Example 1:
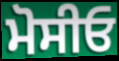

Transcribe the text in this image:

ਮੋਸੀਓ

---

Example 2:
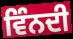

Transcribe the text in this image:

ਵਿੰਨਦੀ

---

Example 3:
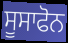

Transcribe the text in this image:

ਸੂਸਾਫੋਨ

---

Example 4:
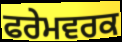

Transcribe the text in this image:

ਫਰੇਮਵਰਕ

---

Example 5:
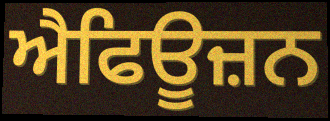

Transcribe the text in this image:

ਐਫਿਊਜ਼ਨ